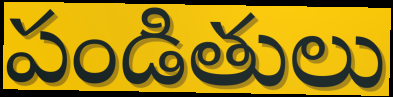
పండితులు